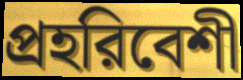
প্রহরিবেশী